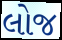
લોજ